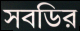
সবডির